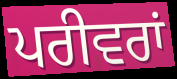
ਪਰੀਵਰਾਂ